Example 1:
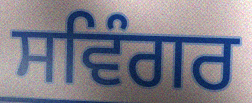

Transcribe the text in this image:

ਸਵਿੰਗਰ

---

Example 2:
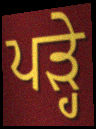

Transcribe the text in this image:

ਪੜ੍ਹੇ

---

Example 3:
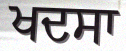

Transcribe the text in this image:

ਖਦਸਾ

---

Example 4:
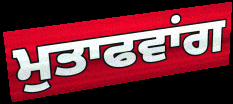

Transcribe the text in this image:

ਮੁਤਾਫਵਾਂਗ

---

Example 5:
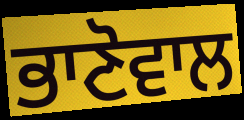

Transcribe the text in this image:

ਭਾਣੋਵਾਲ